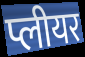
प्लीयर